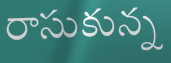
రాసుకున్న